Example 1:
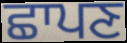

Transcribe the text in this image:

ਛਾਪਣ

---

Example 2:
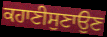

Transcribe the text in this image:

ਕਹਾਣੀਸੁਣਾਉਣ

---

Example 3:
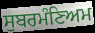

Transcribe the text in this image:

ਸੁਬਰਮੰਣਿਅਮ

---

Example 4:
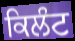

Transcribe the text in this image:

ਕਿਲੰਟ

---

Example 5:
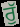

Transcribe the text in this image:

ਰੁੱ